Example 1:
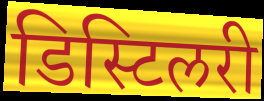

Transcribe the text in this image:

डिस्टिलरी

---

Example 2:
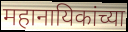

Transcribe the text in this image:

महानायिकांच्या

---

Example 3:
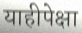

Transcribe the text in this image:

याहीपेक्षा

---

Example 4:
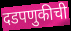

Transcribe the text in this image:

दडपणुकीची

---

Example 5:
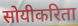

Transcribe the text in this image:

सोयीकरिता